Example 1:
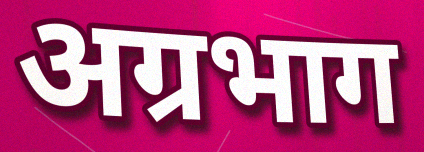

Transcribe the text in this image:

अग्रभाग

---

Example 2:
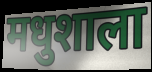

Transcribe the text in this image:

मधुशाला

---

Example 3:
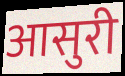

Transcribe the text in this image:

आसुरी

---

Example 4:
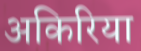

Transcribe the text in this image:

अकिरिया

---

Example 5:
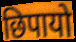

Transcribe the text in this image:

छिपायो